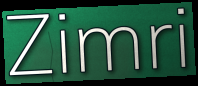
Zimri